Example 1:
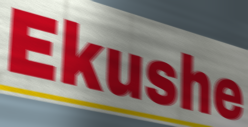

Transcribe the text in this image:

Ekushe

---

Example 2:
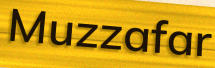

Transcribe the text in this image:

Muzzafar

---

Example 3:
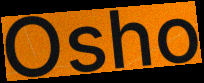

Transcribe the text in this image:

Osho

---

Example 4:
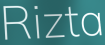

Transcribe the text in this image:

Rizta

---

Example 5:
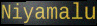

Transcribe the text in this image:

Niyamalu